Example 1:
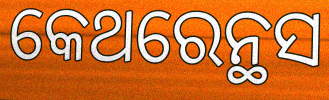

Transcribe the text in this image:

କେଥରେନ୍ଥସ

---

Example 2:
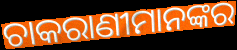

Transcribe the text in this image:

ଚାକରାଣୀମାନଙ୍କର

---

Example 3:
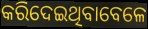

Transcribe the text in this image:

କରିଦେଇଥିବାବେଳେ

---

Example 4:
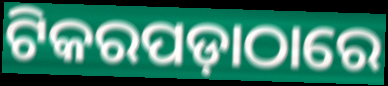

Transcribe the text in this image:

ଟିକରପଡ଼ାଠାରେ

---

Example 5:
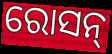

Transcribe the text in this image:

ରୋସନ୍